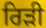
ਰਿੜੀ